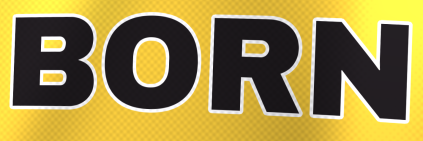
BORN